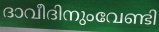
ദാവീദിനുംവേണ്ടി